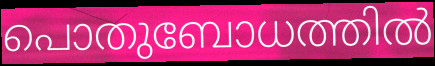
പൊതുബോധത്തിൽ